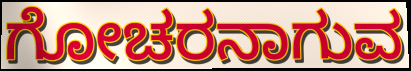
ಗೋಚರನಾಗುವ